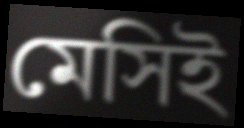
মেসিই